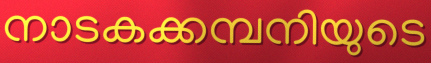
നാടകക്കമ്പനിയുടെ